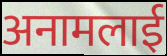
अनामलाई